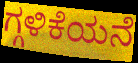
ಗ್ಗಳಿಕೆಯನೆ